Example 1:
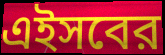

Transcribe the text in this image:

এইসবের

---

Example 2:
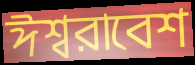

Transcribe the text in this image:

ঈশ্বরাবেশ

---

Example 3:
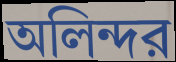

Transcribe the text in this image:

অলিন্দর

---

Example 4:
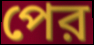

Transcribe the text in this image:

পের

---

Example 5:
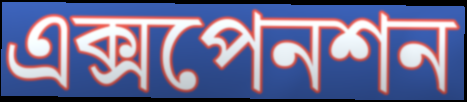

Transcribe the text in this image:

এক্সপেনশন